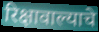
रिक्षावाल्याचे